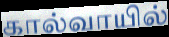
கால்வாயில்